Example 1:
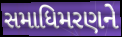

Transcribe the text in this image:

સમાધિમરણને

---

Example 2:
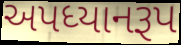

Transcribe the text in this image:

અપધ્યાનરૂપ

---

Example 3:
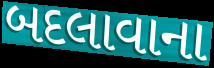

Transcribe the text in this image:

બદલાવાના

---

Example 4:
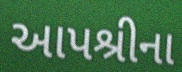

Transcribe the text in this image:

આપશ્રીના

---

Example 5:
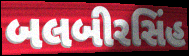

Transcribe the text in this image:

બલબીરસિંહ